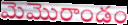
మెమొరాండం